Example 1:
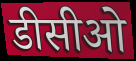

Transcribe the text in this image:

डीसीओ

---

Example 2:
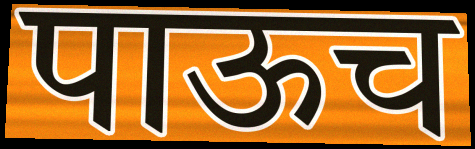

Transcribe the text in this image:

पाऊच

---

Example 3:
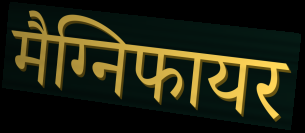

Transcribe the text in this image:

मैग्निफायर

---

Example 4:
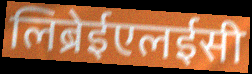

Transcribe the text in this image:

लिब्रेईएलईसी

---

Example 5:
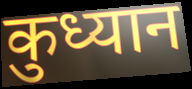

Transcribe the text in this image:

कुध्यान